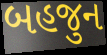
બહજુન